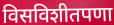
विसविशीतपणा